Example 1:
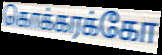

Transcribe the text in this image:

கொக்கரக்கோ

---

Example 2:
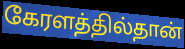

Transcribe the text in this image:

கேரளத்தில்தான்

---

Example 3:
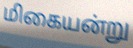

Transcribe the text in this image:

மிகையன்று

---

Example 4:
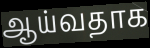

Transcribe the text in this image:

ஆய்வதாக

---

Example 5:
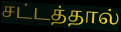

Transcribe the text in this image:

சட்டத்தால்